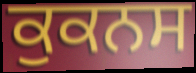
ਕੁਕਨਸ